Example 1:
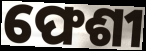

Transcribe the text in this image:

ଫେଶୀ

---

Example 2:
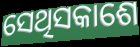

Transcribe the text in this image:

ସେଥିସକାଶେ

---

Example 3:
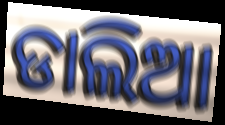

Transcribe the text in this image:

ଡାଲିଆ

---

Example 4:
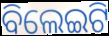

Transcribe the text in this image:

ବିଲେଇଟି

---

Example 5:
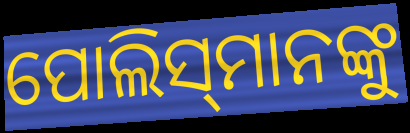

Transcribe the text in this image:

ପୋଲିସ୍‌ମାନଙ୍କୁ